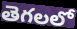
తెగలలో